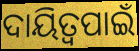
ଦାୟିତ୍ୱପାଇଁ